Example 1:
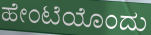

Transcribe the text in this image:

ಹೇಂಟೆಯೊಂದು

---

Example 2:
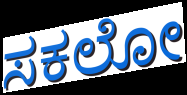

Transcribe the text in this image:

ಸಕಲೋ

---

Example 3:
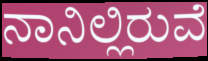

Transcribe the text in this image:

ನಾನಿಲ್ಲಿರುವೆ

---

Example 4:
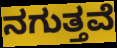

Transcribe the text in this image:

ನಗುತ್ತವೆ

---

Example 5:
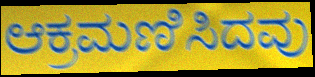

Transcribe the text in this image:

ಆಕ್ರಮಣಿಸಿದವು